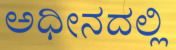
ಅಧೀನದಲ್ಲಿ